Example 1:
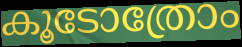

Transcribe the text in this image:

കൂടോത്രോം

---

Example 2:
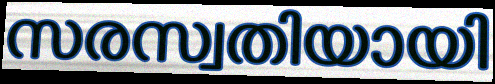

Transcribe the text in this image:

സരസ്വതിയായി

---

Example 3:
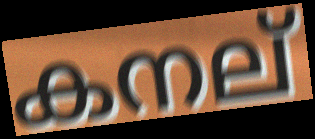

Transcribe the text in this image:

കനല്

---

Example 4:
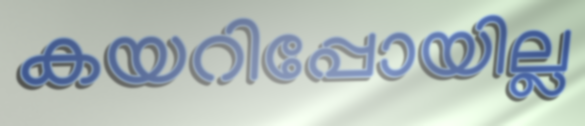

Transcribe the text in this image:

കയറിപ്പോയില്ല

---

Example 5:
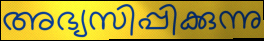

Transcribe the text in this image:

അഭ്യസിപ്പിക്കുന്നു